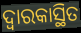
ଦ୍ୱାରକାସ୍ଥିତ